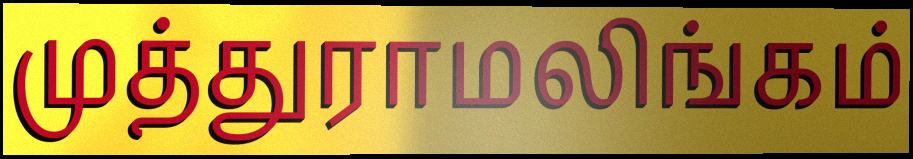
முத்துராமலிங்கம்